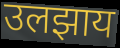
उलझाय